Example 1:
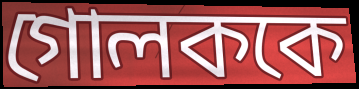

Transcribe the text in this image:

গোলককে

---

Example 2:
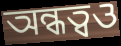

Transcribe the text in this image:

অন্ধত্বও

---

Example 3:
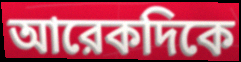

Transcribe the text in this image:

আরেকদিকে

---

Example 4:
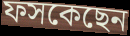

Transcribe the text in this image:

ফসকেছেন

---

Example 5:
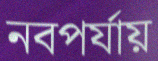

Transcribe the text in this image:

নবপর্যায়